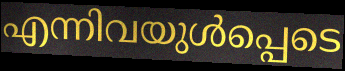
എന്നിവയുൾപ്പെടെ